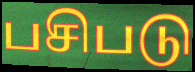
பசிபடு